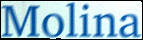
Molina